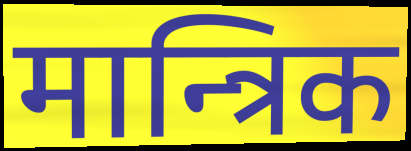
मान्त्रिक